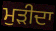
ਮੁੜੀਦਾ